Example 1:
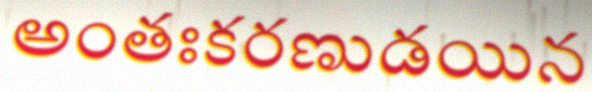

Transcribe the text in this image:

అంతఃకరణుడయిన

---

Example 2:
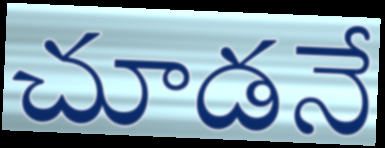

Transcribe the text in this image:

చూడనే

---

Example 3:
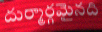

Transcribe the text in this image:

దుర్మార్గమైనది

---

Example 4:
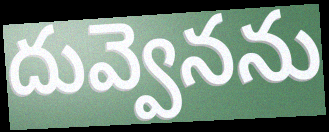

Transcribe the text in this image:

దువ్వెనను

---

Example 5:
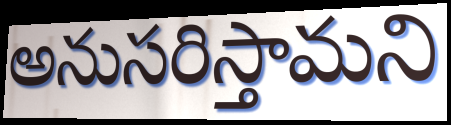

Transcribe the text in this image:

అనుసరిస్తామని